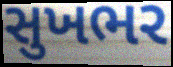
સુખભર